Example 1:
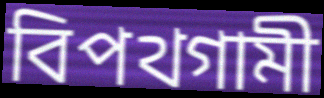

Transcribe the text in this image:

বিপথগামী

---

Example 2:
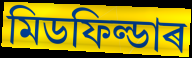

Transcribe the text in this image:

মিডফিল্ডাৰ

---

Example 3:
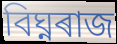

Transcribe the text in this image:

বিঘ্নৰাজ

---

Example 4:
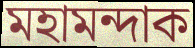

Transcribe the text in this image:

মহামন্দাক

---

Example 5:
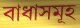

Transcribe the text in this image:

বাধাসমূহ